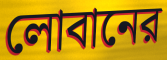
লোবানের